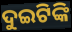
ଦୁଇଟିଙ୍କି